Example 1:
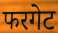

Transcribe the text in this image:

फरगेट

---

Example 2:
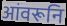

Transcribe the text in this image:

आंवरूनि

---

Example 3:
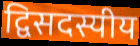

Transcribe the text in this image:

द्विसदस्यीय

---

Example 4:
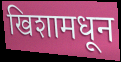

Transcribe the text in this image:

खिशामधून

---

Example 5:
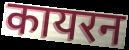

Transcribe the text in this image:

कायरन